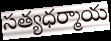
సత్యధర్మాయ